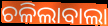
ଚଳିଲାବାଲା